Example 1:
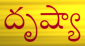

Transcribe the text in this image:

దృష్యా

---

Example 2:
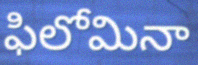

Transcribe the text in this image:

ఫిలోమినా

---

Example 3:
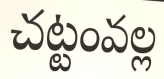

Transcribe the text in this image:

చట్టంవల్ల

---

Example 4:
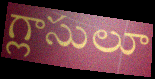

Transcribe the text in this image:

గ్లాసులూ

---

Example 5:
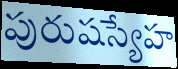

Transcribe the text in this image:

పురుషస్యేహ